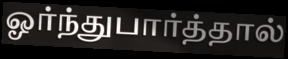
ஓர்ந்துபார்த்தால்